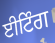
ਈਟਿੰਗ